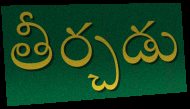
తీర్చడు